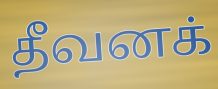
தீவனக்